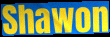
Shawon